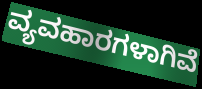
ವ್ಯವಹಾರಗಳಾಗಿವೆ